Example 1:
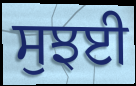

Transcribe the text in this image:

ਸੁਝਈ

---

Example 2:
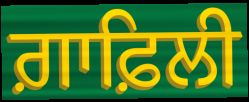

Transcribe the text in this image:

ਗ਼ਾਫ਼ਿਲੀ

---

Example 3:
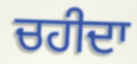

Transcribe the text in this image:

ਚਹੀਦਾ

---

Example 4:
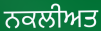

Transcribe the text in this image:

ਨਕਲੀਅਤ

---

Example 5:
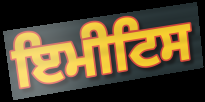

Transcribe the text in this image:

ਇਮੀਟਿਸ